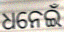
ଧନେଇଁ